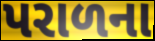
પરાળના